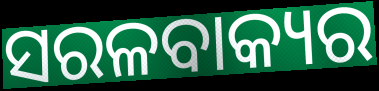
ସରଳବାକ୍ୟର